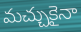
మచ్చుకైనా